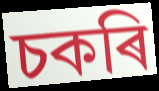
চকৰি